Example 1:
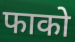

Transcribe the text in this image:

फाको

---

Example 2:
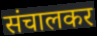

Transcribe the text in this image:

संचालकर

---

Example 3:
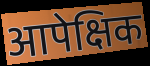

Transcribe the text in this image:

आपेक्षिक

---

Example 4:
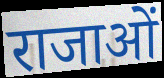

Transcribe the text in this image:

राजाओं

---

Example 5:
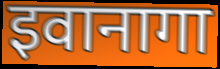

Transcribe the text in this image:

इवानागा